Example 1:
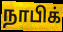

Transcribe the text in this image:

நாபிக்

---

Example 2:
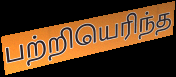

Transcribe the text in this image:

பற்றியெரிந்த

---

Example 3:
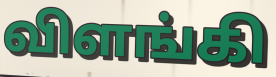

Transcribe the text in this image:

விளங்கி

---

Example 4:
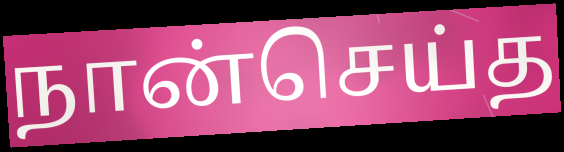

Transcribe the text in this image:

நான்செய்த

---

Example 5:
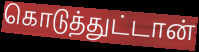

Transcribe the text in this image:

கொடுத்துட்டான்